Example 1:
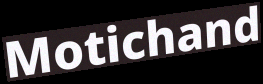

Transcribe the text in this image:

Motichand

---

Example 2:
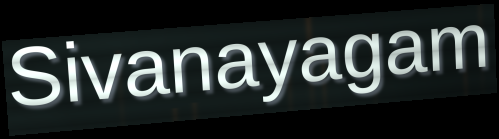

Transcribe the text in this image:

Sivanayagam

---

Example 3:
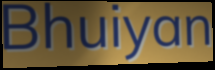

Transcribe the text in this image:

Bhuiyan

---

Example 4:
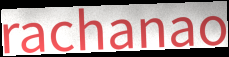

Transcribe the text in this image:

rachanao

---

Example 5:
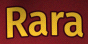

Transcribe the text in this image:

Rara